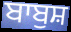
ਬਾਬੁਸ਼